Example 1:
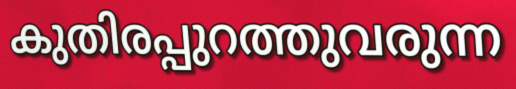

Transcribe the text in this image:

കുതിരപ്പുറത്തുവരുന്ന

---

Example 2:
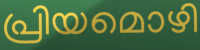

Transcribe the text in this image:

പ്രിയമൊഴി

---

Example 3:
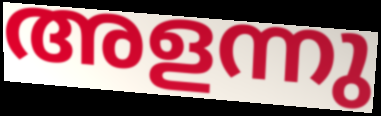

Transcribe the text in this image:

അളന്നു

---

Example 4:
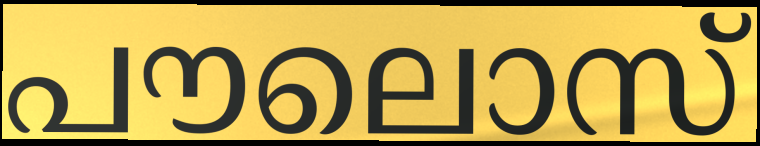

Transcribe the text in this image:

പൗലൊസ്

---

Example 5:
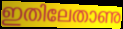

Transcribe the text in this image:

ഇതിലേതാണു